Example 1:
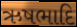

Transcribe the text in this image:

ઋષભાદિ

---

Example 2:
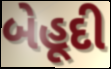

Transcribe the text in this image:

બેહૂદી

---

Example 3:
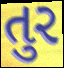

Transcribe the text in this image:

તુર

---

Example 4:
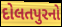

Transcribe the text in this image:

દોલતપુરનો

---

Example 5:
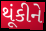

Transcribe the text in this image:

થૂંકીને